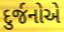
દુર્જનોએ